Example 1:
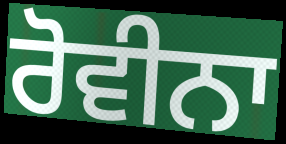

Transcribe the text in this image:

ਰੋਵੀਨਾ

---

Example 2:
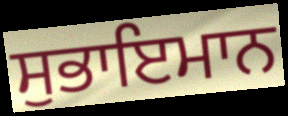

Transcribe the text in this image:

ਸੁਭਾਇਮਾਨ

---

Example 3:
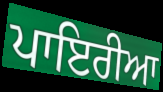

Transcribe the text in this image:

ਪਾਇਰੀਆ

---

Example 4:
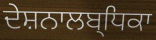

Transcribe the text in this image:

ਦੇਸ਼ਨਾਲਬ੍ਧਿਕਾ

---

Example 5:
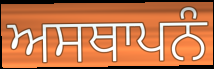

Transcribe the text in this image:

ਅਸਥਾਪਨੰ